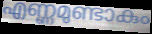
എണ്ണമുണ്ടാകും